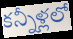
కన్నీళ్లలో